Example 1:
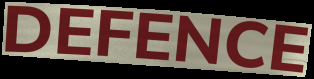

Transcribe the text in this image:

DEFENCE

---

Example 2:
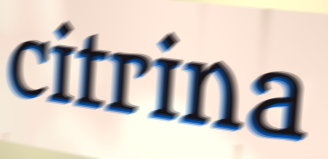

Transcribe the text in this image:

citrina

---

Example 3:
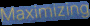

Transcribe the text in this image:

Maximizing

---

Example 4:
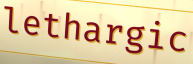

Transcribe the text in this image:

lethargic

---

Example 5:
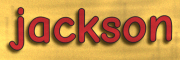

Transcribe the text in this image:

jackson